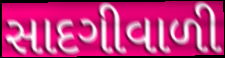
સાદગીવાળી